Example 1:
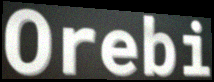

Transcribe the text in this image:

Orebi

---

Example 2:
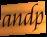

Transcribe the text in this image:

andp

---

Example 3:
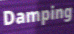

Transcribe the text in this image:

Damping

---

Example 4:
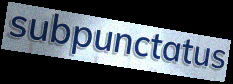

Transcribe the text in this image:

subpunctatus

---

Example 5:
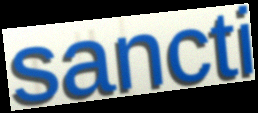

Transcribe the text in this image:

sancti